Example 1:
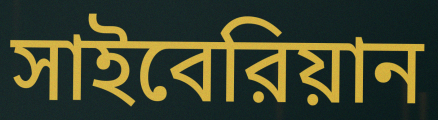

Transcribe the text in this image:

সাইবেরিয়ান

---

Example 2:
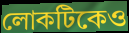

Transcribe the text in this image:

লোকটিকেও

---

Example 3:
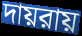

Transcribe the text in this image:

দায়রায়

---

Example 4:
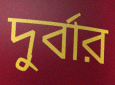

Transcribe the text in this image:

দুর্বার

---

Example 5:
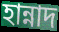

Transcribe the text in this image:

হান্নাদ